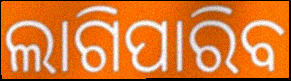
ଲାଗିପାରିବ